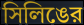
সিলিঙের